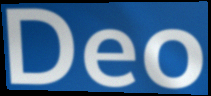
Deo